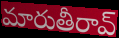
మారుతీరావ్